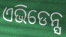
ଏଭିଡେନ୍ସ